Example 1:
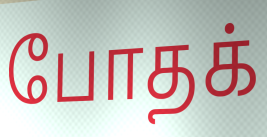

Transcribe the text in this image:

போதக்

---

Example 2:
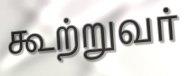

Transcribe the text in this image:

கூற்றுவர்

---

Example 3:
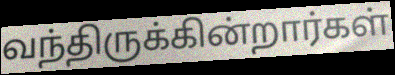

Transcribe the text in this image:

வந்திருக்கின்றார்கள்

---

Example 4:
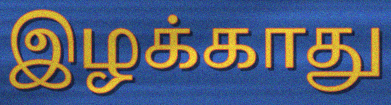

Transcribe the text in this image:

இழக்காது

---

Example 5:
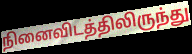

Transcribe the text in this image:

நினைவிடத்திலிருந்து